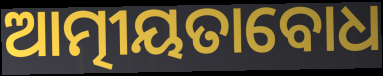
ଆତ୍ମୀୟତାବୋଧ